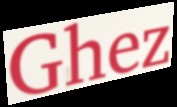
Ghez